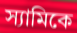
স্যামিকে